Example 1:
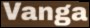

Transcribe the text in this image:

Vanga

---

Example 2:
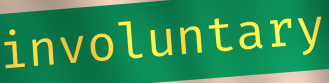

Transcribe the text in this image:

involuntary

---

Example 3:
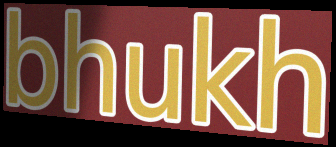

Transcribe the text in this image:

bhukh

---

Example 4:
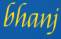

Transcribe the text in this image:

bhanj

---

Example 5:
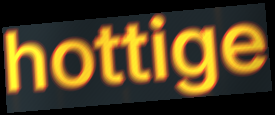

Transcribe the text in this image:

hottige